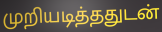
முறியடித்ததுடன்